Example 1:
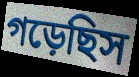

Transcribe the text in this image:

গড়েছিস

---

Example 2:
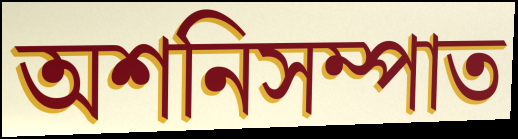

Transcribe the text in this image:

অশনিসম্পাত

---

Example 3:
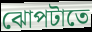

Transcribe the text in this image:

ঝোপটাতে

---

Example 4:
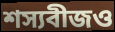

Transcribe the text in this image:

শস্যবীজও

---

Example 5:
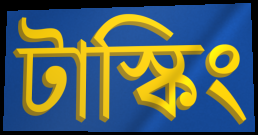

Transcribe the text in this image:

টাস্কিং